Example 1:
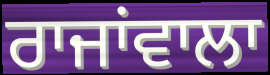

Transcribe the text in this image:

ਰਾਜਾਂਵਾਲਾ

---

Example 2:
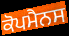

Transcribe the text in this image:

ਕੋਪਮੈਨਸ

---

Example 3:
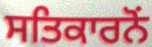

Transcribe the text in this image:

ਸਤਿਕਾਰਨੋਂ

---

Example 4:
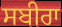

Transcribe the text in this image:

ਸਬੀਰਾ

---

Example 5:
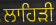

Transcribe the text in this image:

ਲਾਹਿੜੀ